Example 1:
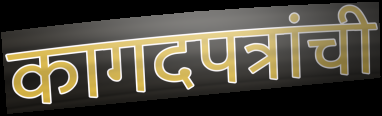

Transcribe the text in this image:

कागदपत्रांची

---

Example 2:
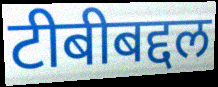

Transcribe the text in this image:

टीबीबद्दल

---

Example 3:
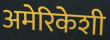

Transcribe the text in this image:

अमेरिकेशी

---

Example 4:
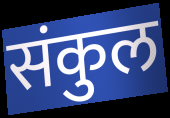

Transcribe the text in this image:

संकुल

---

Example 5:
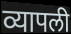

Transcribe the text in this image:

व्यापली